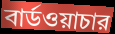
বার্ডওয়াচার